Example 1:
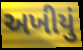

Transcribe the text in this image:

અખીયું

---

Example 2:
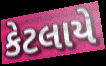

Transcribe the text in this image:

કેટલાયે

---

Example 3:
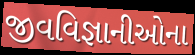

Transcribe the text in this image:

જીવવિજ્ઞાનીઓના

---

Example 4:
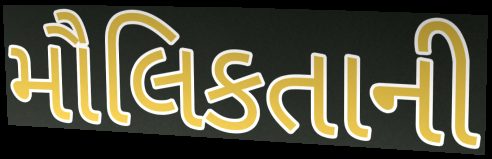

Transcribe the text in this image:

મૌલિકતાની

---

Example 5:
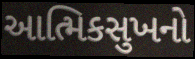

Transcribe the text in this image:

આત્મિકસુખનો